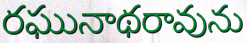
రఘునాథరావును